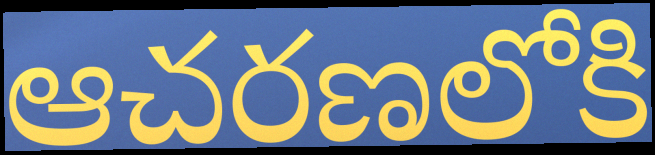
ఆచరణలోకి